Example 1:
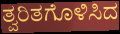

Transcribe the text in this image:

ತ್ವರಿತಗೊಳಿಸಿದ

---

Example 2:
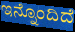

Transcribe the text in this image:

ಇನ್ನೊಂದಿದೆ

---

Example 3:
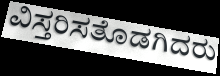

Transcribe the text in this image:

ವಿಸ್ತರಿಸತೊಡಗಿದರು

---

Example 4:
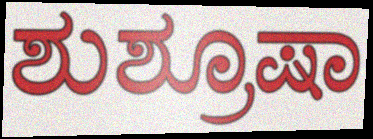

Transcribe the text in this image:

ಶುಶ್ರೂಷಾ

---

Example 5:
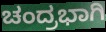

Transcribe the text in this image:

ಚಂದ್ರಭಾಗಿ